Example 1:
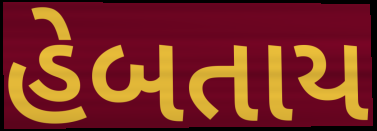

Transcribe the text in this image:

હેબતાય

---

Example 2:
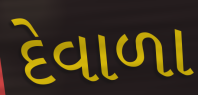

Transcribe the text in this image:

દેવાળા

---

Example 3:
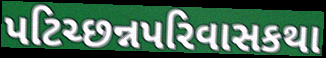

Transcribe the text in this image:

પટિચ્છન્નપરિવાસકથા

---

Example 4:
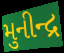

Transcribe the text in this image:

મુનીન્દ્ર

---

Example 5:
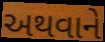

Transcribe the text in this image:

અથવાને